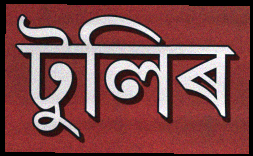
টুলিৰ